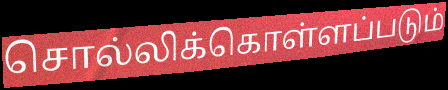
சொல்லிக்கொள்ளப்படும்